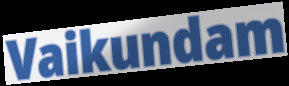
Vaikundam